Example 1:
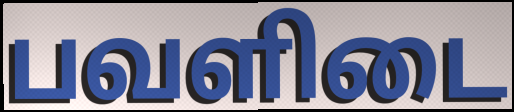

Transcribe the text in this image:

பவளிடை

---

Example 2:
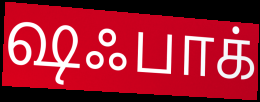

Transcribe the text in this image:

ஷஃபாக்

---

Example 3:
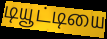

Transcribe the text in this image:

டியூட்டியை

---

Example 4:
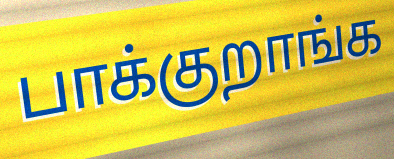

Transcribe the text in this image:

பாக்குறாங்க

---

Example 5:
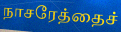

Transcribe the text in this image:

நாசரேத்தைச்